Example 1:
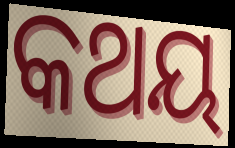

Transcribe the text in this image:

କଥୟ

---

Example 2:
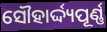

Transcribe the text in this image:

ସୌହାର୍ଦ୍ଦ୍ୟପୂର୍ଣ୍ଣ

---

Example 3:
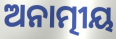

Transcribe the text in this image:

ଅନାତ୍ମୀୟ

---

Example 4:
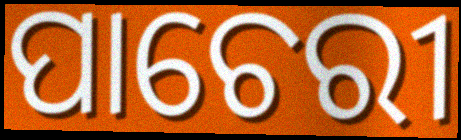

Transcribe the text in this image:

ପାଚେରୀ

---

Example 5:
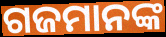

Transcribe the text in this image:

ଗଜମାନଙ୍କ